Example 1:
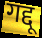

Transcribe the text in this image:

गद्दू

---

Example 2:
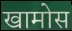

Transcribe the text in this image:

खामोस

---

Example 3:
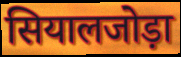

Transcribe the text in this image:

सियालजोड़ा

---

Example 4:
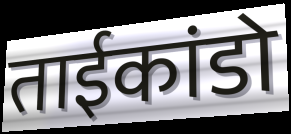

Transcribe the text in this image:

ताईकांडो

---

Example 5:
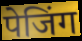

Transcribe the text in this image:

पेजिंग